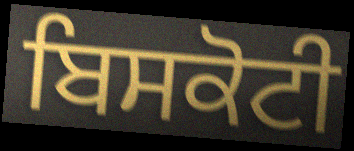
ਬਿਸਕੋਟੀ